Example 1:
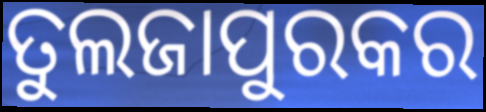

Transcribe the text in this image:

ତୁଲଜାପୁରକର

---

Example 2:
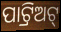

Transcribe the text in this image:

ପାଟ୍ରିଅଟ୍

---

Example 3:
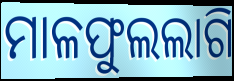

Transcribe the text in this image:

ମାଳଫୁଲଲାଗି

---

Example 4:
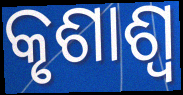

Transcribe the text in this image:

କୃଶାଶ୍ୱ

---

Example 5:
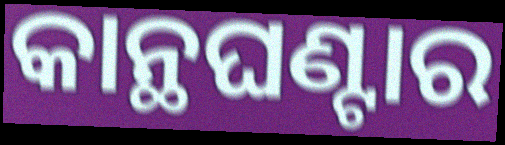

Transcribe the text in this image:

କାନ୍ଥଘଣ୍ଟାର